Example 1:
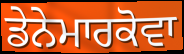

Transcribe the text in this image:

ਡੇਨੇਮਾਰਕੋਵਾ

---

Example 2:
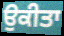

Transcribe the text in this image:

ਉਕੀਤਾ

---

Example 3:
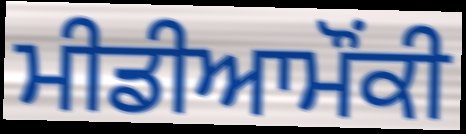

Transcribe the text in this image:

ਮੀਡੀਆਮੌਂਕੀ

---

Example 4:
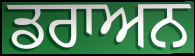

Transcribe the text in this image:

ਡਰਾਅਨ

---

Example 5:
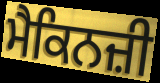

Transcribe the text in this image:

ਮੈਕਿਨਜ਼ੀ